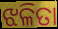
ଝଳିତା